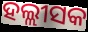
ହଲ୍ଲୀସକ